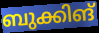
ബുക്കിങ്